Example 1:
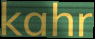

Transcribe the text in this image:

kahr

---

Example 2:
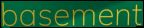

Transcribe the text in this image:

basement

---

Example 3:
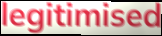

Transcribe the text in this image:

legitimised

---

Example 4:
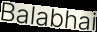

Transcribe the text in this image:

Balabhai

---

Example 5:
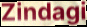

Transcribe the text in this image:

Zindagi